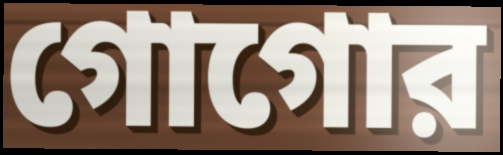
গোগোর